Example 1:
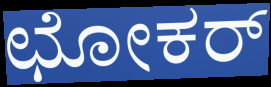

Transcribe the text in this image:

ಛೋಕರ್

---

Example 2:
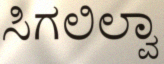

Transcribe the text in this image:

ಸಿಗಲಿಲ್ವಾ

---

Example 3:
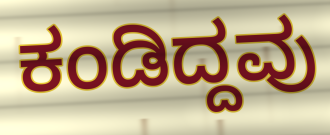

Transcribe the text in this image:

ಕಂಡಿದ್ದವು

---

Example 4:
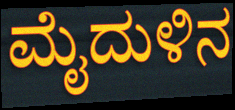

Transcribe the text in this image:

ಮೈದುಳಿನ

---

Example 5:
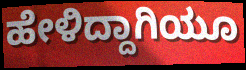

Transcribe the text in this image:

ಹೇಳಿದ್ದಾಗಿಯೂ